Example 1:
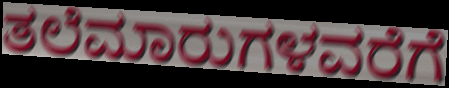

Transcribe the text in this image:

ತಲೆಮಾರುಗಳವರೆಗೆ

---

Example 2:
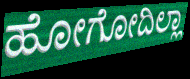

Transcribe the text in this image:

ಹೋಗೋದಿಲ್ಲಾ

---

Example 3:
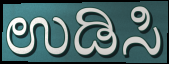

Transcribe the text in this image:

ಉಡಿಸಿ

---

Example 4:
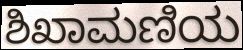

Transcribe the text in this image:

ಶಿಖಾಮಣಿಯ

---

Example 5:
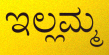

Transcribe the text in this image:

ಇಲ್ಲಮ್ಮ